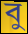
বু